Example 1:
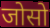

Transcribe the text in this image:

जोसो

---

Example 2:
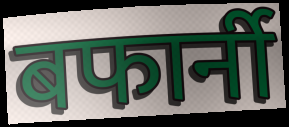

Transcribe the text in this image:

बफार्नी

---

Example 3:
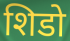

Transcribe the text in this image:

शिडो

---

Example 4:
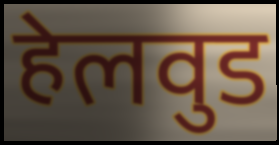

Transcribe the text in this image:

हेलवुड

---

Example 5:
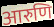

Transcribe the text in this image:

आरुणि